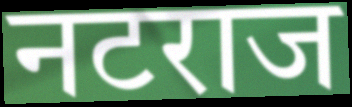
नटराज